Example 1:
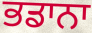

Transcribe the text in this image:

ਭਡਾਨਾ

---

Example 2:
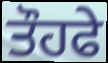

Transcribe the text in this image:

ਤੌਹਫੇ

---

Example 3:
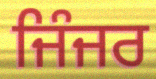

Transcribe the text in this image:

ਜਿੰਜਰ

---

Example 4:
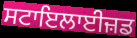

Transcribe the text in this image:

ਸਟਾਇਲਾਈਜ਼ਡ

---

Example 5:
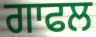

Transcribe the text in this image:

ਗਾਫਲ